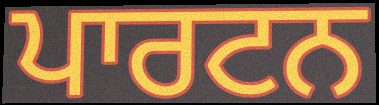
ਪਾਰਟਨ